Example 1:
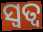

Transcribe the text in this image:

ସ୍ୱତ୍ୱ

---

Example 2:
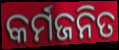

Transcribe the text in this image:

କର୍ମଜନିତ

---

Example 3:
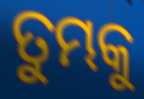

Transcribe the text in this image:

ତୁମ୍ଭକୁ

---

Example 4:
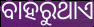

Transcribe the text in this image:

ବାହରୁଥାଏ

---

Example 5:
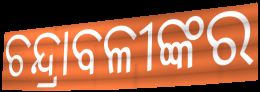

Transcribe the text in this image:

ଚନ୍ଦ୍ରାବଳୀଙ୍କର